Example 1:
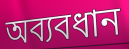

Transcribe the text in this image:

অব্যবধান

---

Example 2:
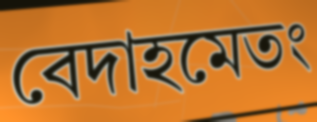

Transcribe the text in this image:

বেদাহমেতং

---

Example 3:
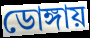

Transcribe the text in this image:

ডোঙ্গায়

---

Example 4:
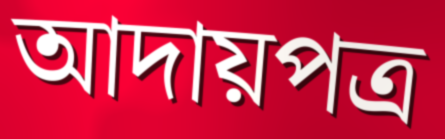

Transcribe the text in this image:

আদায়পত্র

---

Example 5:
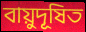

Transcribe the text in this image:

বায়ুদূষিত